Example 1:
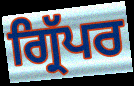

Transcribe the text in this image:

ਗ੍ਰਿੱਪਰ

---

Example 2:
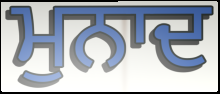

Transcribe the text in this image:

ਮੁਨਾਦ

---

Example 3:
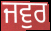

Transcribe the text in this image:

ਜਵੁਰ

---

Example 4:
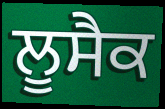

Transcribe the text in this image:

ਲੂਸੈਕ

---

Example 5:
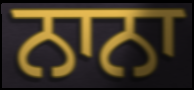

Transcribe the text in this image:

ਨਾਨਾ